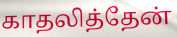
காதலித்தேன்